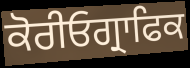
ਕੋਰੀਓਗ੍ਰਾਫਿਕ